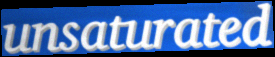
unsaturated